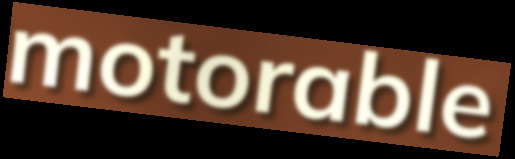
motorable